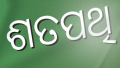
ଶତପଥି